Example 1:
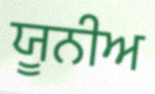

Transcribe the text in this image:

ਯੂਨੀਅ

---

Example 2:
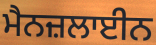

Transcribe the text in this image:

ਮੈਨਜ਼ਲਾਈਨ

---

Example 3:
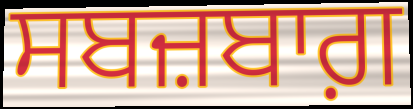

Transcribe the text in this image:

ਸਬਜ਼ਬਾਗ਼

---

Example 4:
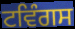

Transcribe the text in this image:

ਟਵਿੰਗਸ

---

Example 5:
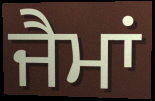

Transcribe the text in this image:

ਜੈਮਾਂ